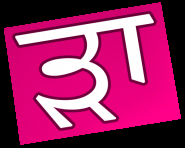
ੜਾ